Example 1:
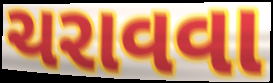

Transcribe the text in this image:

ચરાવવા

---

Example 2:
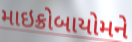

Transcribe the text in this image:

માઇક્રોબાયોમને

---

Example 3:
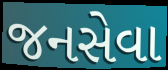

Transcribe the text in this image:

જનસેવા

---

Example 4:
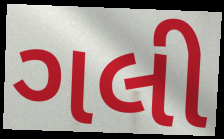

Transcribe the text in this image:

ગલી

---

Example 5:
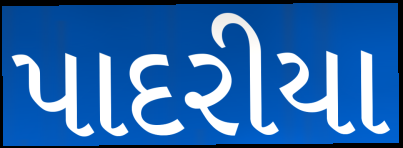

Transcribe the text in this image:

પાદરીયા